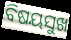
ବିଷୟସୁଖ